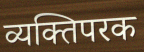
व्यक्तिपरक